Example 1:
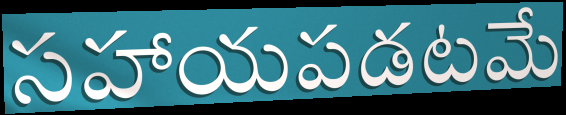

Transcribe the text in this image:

సహాయపడటమే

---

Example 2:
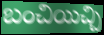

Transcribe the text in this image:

బంచియిచ్చి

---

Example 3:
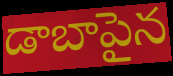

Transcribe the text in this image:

డాబాపైన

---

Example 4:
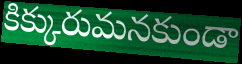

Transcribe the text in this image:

కిక్కురుమనకుండా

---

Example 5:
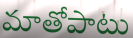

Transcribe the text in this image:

మాతోపాటు